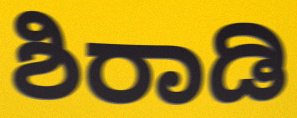
ಶಿರಾಡಿ